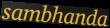
sambhanda